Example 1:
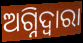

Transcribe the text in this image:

ଅଗ୍ନିଦ୍ଵାରା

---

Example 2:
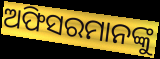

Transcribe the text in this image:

ଅଫିସରମାନଙ୍କୁ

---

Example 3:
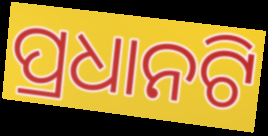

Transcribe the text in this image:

ପ୍ରଧାନଟି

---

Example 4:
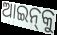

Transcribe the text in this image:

ଆଇନ୍‍କୁ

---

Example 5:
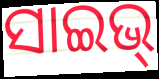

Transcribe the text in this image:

ସାଇଭ୍